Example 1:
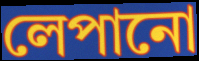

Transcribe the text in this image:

লেপানো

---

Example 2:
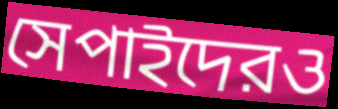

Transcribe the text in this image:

সেপাইদেরও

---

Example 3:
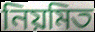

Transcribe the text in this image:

নিয়মিত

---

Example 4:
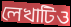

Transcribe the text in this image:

লেখাটিও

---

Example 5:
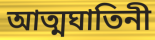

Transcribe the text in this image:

আত্মঘাতিনী